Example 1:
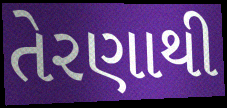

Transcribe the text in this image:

તેરણાથી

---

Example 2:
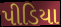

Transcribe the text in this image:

પીડિયા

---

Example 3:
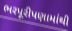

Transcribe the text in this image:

ભરપૂરીપણામાંથી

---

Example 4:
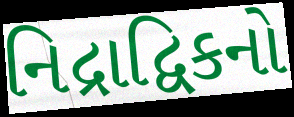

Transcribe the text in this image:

નિદ્રાદ્વિકનો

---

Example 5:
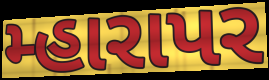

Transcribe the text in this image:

મ્હારાપર